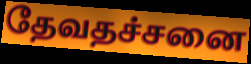
தேவதச்சனை